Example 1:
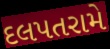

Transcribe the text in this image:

દલપતરામે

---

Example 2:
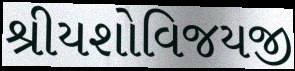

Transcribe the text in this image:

શ્રીયશોવિજયજી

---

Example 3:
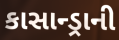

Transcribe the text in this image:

કાસાન્ડ્રાની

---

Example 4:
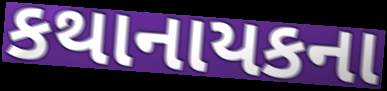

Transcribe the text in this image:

કથાનાયકના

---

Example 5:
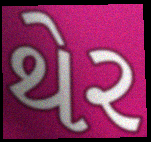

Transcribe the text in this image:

થેર